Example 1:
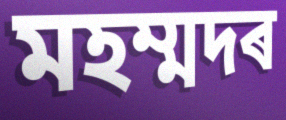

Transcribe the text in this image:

মহম্মদৰ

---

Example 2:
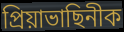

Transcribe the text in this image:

প্ৰিয়াভাছিনীক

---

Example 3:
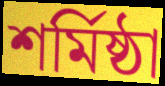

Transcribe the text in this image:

শৰ্মিষ্ঠা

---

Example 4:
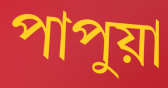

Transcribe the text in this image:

পাপুয়া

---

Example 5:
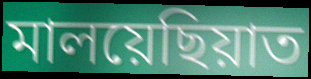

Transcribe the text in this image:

মালয়েছিয়াত